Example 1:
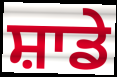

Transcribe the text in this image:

ਸ਼ਾਡੇ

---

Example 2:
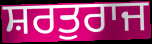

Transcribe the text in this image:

ਸ਼ਰਤੁਰਾਜ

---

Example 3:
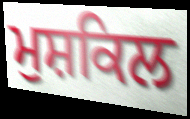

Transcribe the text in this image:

ਮੁਸ਼ਕਿਲ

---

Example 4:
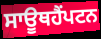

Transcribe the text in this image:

ਸਾਊਥਹੈਂਪਟਨ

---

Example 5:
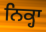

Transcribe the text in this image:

ਨਿਕ੍ਹਾ